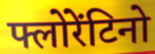
फ्लोरेंटिनो